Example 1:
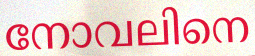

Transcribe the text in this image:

നോവലിനെ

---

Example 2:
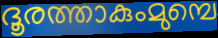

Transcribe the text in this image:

ദൂരത്താകുംമുമ്പെ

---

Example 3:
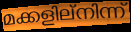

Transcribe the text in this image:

മക്കളില്നിന്ന്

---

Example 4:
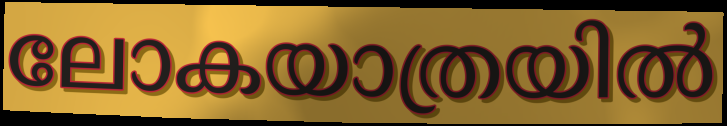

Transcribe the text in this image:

ലോകയാത്രയിൽ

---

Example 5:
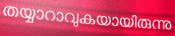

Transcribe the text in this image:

തയ്യാറാവുകയായിരുന്നു